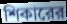
শিকারের